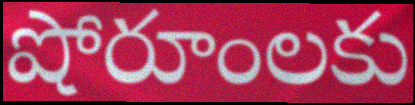
షోరూంలకు